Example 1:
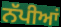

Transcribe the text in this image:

ਨੱਪੀਆਂ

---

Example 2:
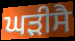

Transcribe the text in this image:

ਘੜੀਸੈ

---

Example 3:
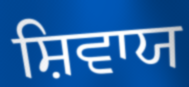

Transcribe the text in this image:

ਸ਼ਿਵਾਯ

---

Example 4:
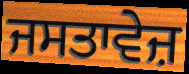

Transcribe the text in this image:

ਜਸਤਾਵੇਜ਼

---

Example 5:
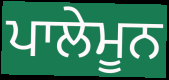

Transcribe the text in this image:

ਪਾਲੇਮੂਨ